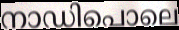
നാഡിപൊലെ